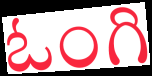
ఓంగి